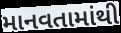
માનવતામાંથી